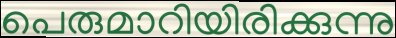
പെരുമാറിയിരിക്കുന്നു